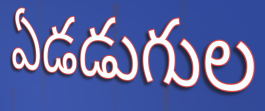
ఏడడుగుల